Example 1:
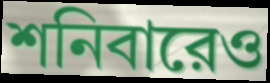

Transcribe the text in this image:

শনিবারেও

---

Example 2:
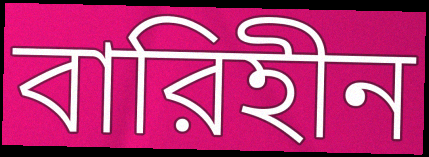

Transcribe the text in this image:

বারিহীন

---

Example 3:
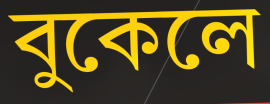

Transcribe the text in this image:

বুকেলে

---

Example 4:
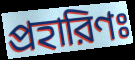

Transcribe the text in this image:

প্রহারিণঃ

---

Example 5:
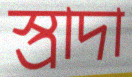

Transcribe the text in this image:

স্ত্রাদা